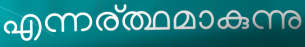
എന്നര്ത്ഥമാകുന്നു